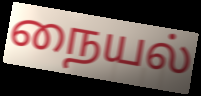
நையல்